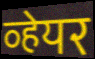
व्हेयर